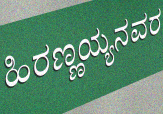
ಹಿರಣ್ಣಯ್ಯನವರ